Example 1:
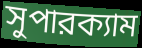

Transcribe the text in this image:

সুপারক্যাম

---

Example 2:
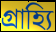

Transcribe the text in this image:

গ্রাহ্যি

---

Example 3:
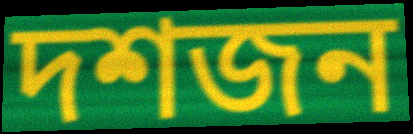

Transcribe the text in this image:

দশজন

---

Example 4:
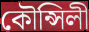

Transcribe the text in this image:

কৌন্সিলী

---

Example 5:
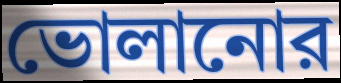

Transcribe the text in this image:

ভোলানোর